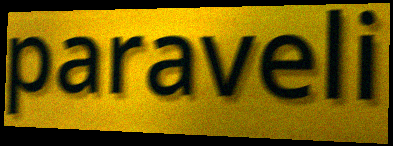
paraveli